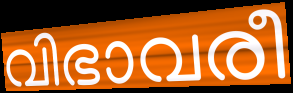
വിഭാവരീ